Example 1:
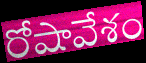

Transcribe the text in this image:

రోషావేశం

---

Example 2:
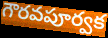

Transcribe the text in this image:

గౌరవపూర్వక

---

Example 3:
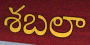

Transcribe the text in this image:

శబలా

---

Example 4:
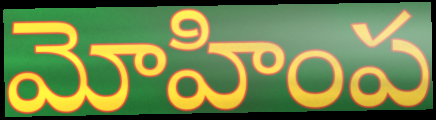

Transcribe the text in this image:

మోహింప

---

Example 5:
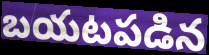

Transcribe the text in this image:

బయటపడిన